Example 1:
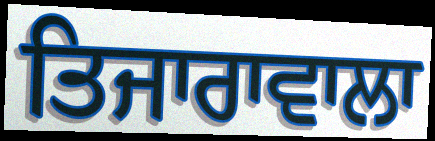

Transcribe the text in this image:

ਤਿਜਾਰਾਵਾਲਾ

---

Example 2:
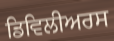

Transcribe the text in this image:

ਡਿਵਿਲੀਅਰਸ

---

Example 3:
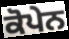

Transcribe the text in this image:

ਕੋਪੇਨ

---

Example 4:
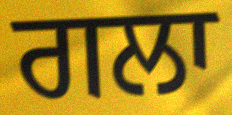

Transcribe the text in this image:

ਗਲਾ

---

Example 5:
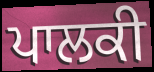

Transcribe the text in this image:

ਪਾਲਕੀ